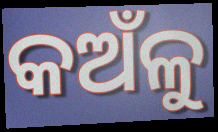
କଅଁଳୁ